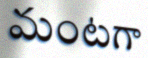
మంటగా